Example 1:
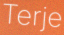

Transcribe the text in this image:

Terje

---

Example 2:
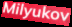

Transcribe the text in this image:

Milyukov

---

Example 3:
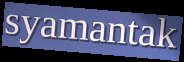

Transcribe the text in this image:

syamantak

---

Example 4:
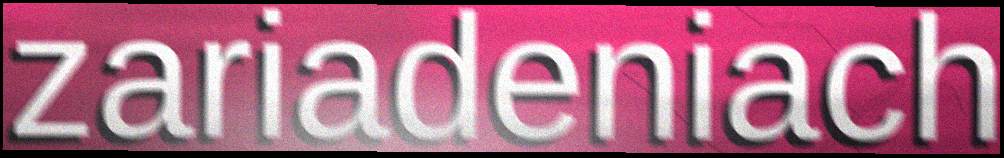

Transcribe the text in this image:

zariadeniach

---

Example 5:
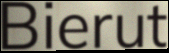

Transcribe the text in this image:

Bierut